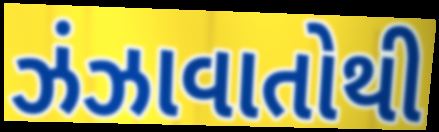
ઝંઝાવાતોથી